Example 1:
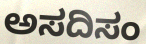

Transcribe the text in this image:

ಅಸದಿಸಂ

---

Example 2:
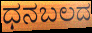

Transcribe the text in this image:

ಧನಬಲದ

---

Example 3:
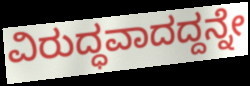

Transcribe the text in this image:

ವಿರುದ್ಧವಾದದ್ದನ್ನೇ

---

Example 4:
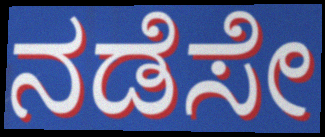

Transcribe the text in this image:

ನಡೆಸೇ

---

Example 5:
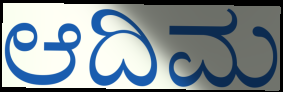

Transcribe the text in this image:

ಆದಿಮ